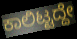
ಕಾಲಿಟ್ಟದ್ದೇ